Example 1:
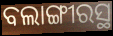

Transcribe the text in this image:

ବଲାଙ୍ଗୀରସ୍ଥ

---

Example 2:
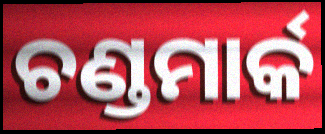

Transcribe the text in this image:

ଚଣ୍ଡମାର୍କ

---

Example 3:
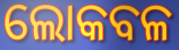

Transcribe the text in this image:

ଲୋକବଳ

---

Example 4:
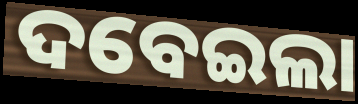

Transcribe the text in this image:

ଦବେଇଲା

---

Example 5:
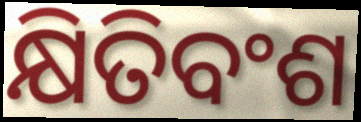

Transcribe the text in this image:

କ୍ଷିତିବଂଶ